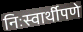
निःस्वार्थीपणे